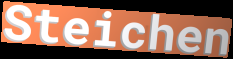
Steichen